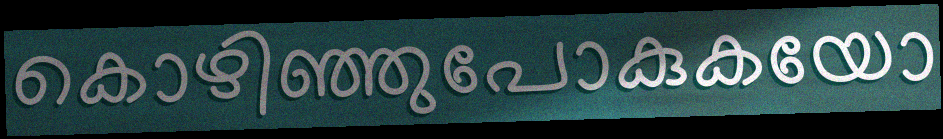
കൊഴിഞ്ഞുപോകുകയോ